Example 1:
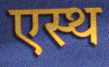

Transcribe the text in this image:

एस्थ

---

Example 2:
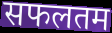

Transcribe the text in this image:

सफलतम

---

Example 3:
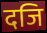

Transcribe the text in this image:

दजि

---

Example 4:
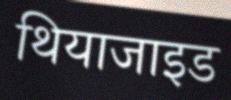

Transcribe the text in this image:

थियाजाइड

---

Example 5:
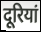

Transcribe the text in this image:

दूरियां